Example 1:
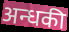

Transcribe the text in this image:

अन्धकी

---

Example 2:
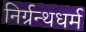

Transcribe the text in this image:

निर्ग्रन्थधर्म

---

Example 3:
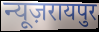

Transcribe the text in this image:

न्यूज़रायपुर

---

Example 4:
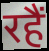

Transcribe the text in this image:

रहैं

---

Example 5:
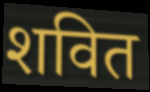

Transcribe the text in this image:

शवित